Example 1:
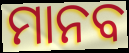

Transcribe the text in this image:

ମାନବ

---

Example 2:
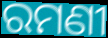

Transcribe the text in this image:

ରମଣୀ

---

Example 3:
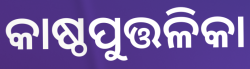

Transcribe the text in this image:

କାଷ୍ଠପୁତ୍ତଳିକା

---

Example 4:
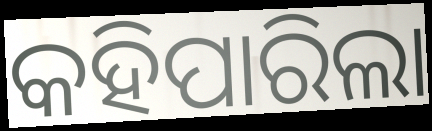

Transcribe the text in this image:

କହିପାରିଲା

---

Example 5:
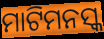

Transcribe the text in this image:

ମାଟିମନସ୍କ